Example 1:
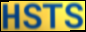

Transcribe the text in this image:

HSTS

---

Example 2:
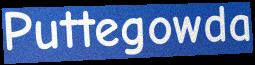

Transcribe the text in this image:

Puttegowda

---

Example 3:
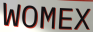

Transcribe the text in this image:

WOMEX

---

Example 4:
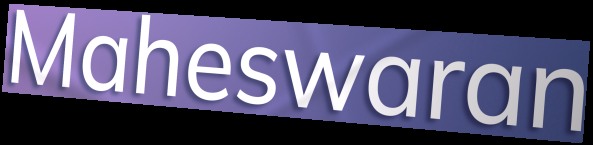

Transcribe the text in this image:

Maheswaran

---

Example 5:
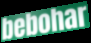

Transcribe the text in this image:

bebohar